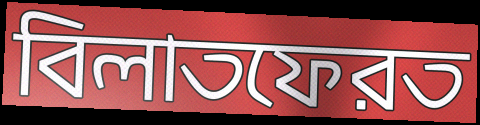
বিলাতফেরত